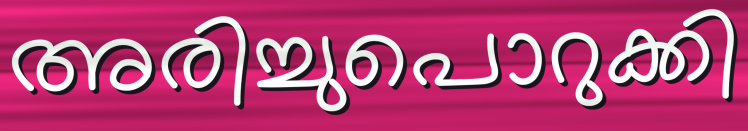
അരിച്ചുപൊറുക്കി